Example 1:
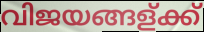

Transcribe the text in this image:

വിജയങ്ങള്ക്ക്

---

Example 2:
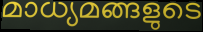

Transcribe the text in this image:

മാധ്യമങ്ങളുടെ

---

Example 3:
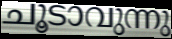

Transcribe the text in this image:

ചൂടാവുന്നു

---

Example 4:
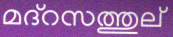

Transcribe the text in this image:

മദ്റസത്തുല്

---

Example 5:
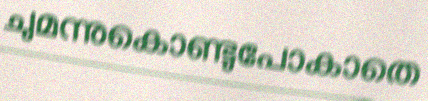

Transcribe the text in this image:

ചുമന്നുകൊണ്ടുപോകാതെ